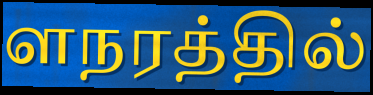
ளநரத்தில்